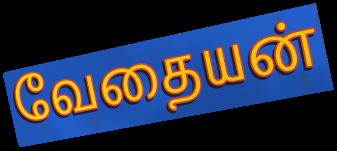
வேதையன்